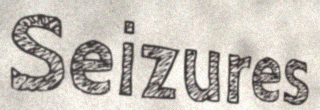
Seizures